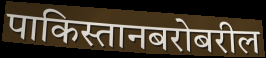
पाकिस्तानबरोबरील